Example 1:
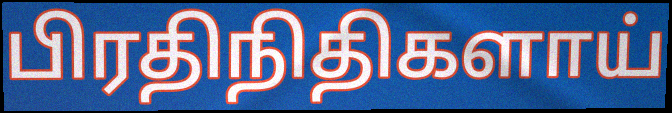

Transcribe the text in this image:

பிரதிநிதிகளாய்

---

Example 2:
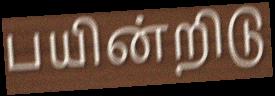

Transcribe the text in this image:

பயின்றிடு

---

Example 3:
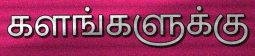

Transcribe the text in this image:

களங்களுக்கு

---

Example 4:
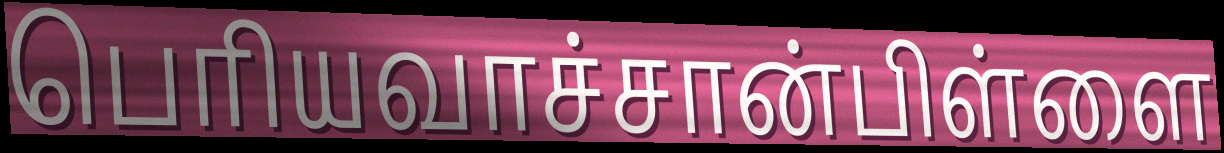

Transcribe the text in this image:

பெரியவாச்சான்பிள்ளை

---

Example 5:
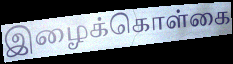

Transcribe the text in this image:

இழைக்கொள்கை